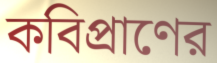
কবিপ্রাণের